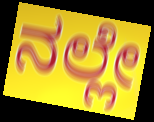
ನಲ್ಲೇ